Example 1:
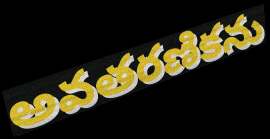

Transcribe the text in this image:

అవతరణికను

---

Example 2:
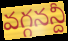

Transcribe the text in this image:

వగ్గనన్దీ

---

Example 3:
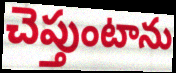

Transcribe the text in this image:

చెప్తుంటాను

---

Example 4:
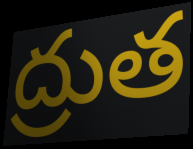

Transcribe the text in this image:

ద్రుత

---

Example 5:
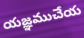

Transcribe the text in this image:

యజ్ఞముచేయ